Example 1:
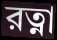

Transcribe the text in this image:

রত্না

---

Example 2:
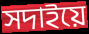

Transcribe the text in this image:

সদাইয়ে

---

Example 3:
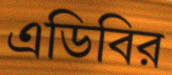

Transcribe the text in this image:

এডিবির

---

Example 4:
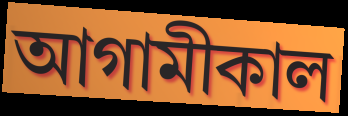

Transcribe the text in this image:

আগামীকাল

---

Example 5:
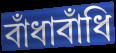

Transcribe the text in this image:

বাঁধাবাঁধি